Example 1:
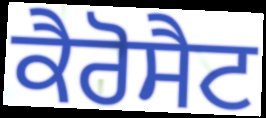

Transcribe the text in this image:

ਕੈਰੋਸੈਟ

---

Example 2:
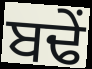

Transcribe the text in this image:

ਬਢੇਂ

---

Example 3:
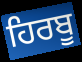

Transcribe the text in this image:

ਹਿਰਬੂ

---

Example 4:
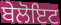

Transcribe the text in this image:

ਬੇਲੋਇਟ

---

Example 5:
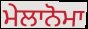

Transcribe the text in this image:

ਮੇਲਾਨੋਮਾ